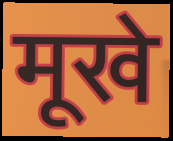
मूखे